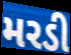
મરડી